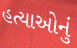
હત્યાઓનું